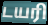
டயரி